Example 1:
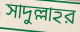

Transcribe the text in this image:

সাদুল্লাহর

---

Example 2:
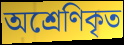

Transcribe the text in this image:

অশ্রেণিকৃত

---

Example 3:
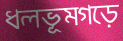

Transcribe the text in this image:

ধলভূমগড়ে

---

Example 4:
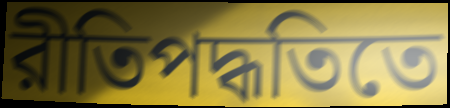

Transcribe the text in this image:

রীতিপদ্ধতিতে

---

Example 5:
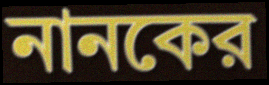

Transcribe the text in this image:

নানকের